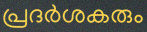
പ്രദർശകരും